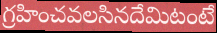
గ్రహించవలసినదేమిటంటే